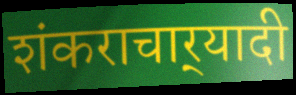
शंकराचार्यादी